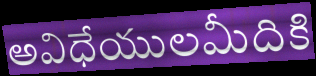
అవిధేయులమీదికి